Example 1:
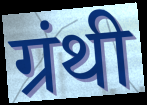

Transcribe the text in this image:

ग्रंथी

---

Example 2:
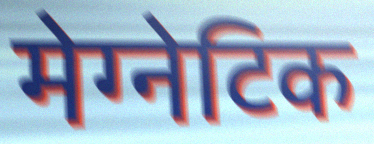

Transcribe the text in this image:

मेग्नेटिक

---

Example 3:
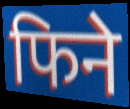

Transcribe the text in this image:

फिने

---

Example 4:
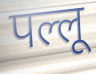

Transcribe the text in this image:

पल्लू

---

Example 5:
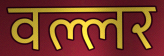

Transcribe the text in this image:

वल्लर